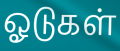
ஓடுகள்